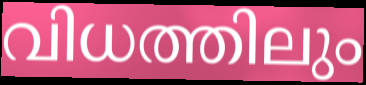
വിധത്തിലും